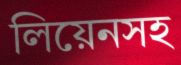
লিয়েনসহ